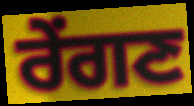
ਰੇਂਗਣ